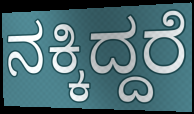
ನಕ್ಕಿದ್ದರೆ